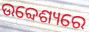
ଉବ୍ଦେଶ୍ୟରେ